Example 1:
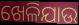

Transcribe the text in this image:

ଖେଳିଯାଉ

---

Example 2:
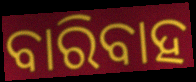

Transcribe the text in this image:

ବାରିବାହ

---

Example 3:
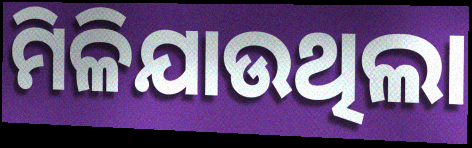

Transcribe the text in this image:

ମିଳିଯାଉଥିଲା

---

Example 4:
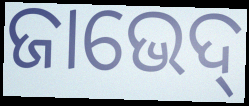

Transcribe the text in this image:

ଜାଭେଦ୍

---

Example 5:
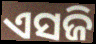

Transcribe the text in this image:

ଏସଜି